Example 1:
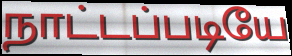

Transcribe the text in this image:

நாட்டப்படியே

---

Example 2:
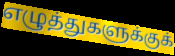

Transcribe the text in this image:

எழுத்துகளுக்குக்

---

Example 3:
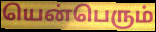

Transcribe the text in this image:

யென்பெரும்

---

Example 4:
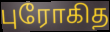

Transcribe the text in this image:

புரோகித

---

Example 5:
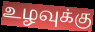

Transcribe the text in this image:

உழவுக்கு